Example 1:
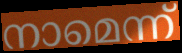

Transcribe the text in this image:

നാമെന്ന്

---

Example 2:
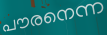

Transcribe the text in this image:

പൗരനെന്ന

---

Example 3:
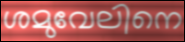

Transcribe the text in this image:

ശമുവേലിനെ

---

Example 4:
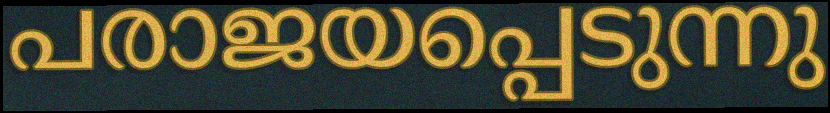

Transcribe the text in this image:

പരാജയപ്പെടുന്നു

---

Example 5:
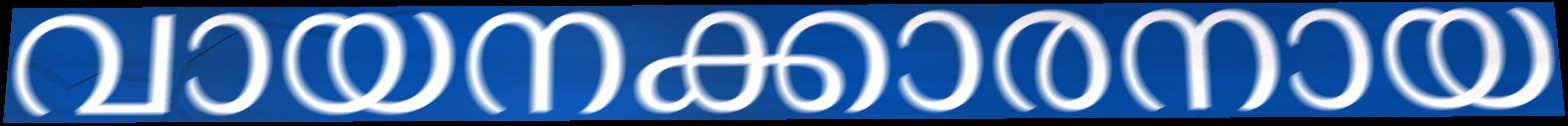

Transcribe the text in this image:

വായനക്കാരനായ